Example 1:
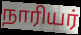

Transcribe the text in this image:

நாரியர்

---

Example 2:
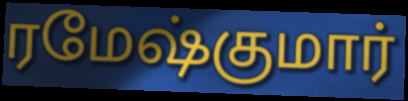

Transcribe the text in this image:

ரமேஷ்குமார்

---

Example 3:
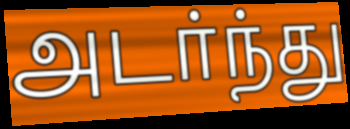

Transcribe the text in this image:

அடர்ந்து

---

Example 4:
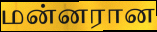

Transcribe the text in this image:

மன்னரான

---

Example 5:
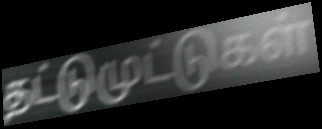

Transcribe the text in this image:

தட்டுமுட்டுகள்